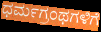
ಧರ್ಮಗ್ರಂಥಗಳಿಗೆ